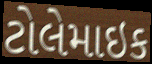
ટોલેમાઇક